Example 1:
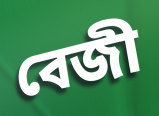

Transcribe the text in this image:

বেজী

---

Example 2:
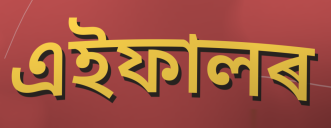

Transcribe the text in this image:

এইফালৰ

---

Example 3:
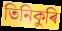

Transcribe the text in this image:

তিনিকুৰি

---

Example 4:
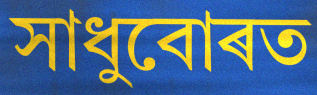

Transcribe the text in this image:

সাধুবোৰত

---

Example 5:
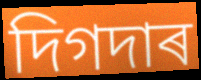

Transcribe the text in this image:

দিগদাৰ